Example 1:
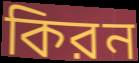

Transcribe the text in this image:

কিরন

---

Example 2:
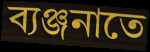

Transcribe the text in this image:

ব্যঞ্জনাতে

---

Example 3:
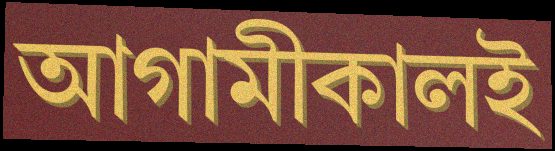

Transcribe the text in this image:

আগামীকালই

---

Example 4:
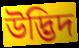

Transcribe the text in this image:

উদ্ভিদ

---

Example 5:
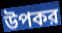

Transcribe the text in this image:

উপকর